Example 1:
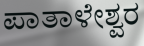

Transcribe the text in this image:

ಪಾತಾಳೇಶ್ವರ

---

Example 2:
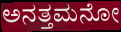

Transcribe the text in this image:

ಅನತ್ತಮನೋ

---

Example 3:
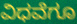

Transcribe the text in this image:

ವಿಧವೆಗೂ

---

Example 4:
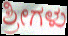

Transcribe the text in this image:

ಶ್ರೀಗಳು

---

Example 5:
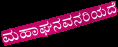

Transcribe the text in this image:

ಮಹಾಘನವನರಿಯದೆ